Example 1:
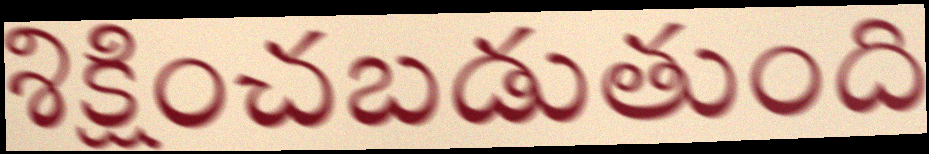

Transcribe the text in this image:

శిక్షించబడుతుంది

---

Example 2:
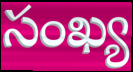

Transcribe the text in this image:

సంఖ్య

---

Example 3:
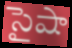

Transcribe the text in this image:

సైషా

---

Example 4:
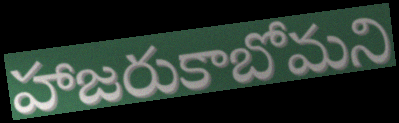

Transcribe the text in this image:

హాజరుకాబోమని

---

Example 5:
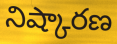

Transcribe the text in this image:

నిష్కారణ